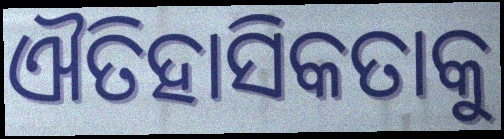
ଐତିହାସିକତାକୁ